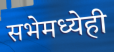
सभेमध्येही